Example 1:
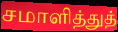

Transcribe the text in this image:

சமாளித்துத்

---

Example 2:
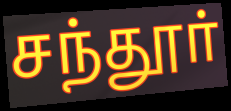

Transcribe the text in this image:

சந்தூர்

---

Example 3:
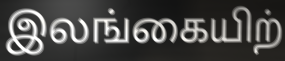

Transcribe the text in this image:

இலங்கையிற்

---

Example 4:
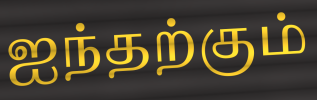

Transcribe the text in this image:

ஐந்தற்கும்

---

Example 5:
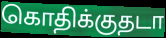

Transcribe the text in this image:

கொதிக்குதடா